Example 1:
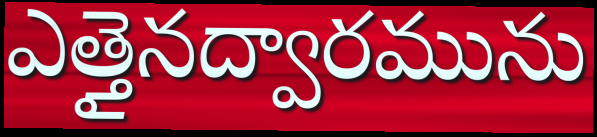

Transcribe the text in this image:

ఎత్తైనద్వారమును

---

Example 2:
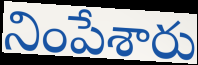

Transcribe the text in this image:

నింపేశారు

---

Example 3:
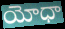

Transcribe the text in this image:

యోధా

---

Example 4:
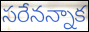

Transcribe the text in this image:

సరేనన్నాక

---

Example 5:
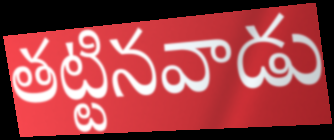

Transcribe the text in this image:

తట్టినవాడు